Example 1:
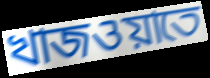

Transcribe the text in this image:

খাজওয়াতে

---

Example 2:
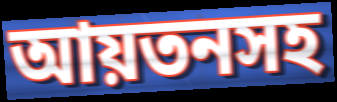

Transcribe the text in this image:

আয়তনসহ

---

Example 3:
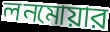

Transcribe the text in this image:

লনমোয়ার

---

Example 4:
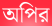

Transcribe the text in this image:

অপির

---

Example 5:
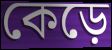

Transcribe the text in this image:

কেড়ে